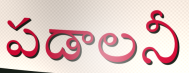
పడాలనీ